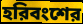
হরিবংশের